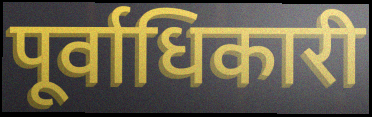
पूर्वाधिकारी